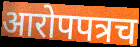
आरोपपत्रच